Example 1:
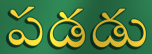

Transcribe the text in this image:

పడడు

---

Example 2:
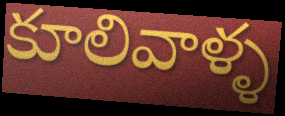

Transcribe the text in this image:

కూలివాళ్ళ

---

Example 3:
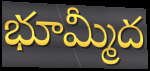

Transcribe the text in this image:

భూమ్మీద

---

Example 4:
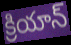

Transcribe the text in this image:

క్రియాన్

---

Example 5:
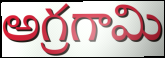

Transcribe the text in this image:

అగ్రగామి